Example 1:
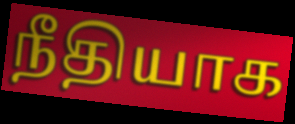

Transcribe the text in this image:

நீதியாக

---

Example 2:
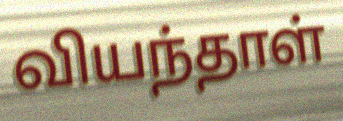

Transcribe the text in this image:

வியந்தாள்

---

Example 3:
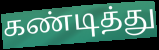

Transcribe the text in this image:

கண்டித்து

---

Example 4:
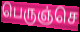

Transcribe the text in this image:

பெருஞ்செ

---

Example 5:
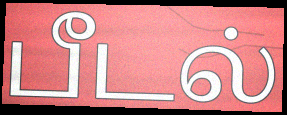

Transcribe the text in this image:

பீடல்